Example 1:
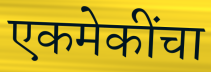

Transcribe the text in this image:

एकमेकींचा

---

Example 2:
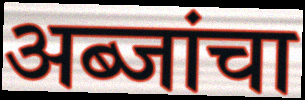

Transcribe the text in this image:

अब्जांचा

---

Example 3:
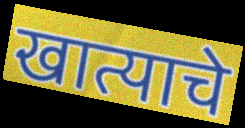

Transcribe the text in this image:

खात्याचे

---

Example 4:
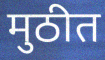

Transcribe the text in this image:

मुठीत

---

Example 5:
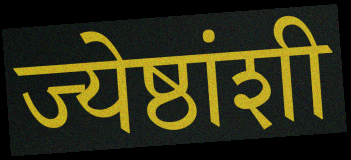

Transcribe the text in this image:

ज्येष्ठांशी